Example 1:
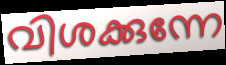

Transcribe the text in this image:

വിശക്കുന്നേ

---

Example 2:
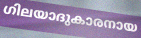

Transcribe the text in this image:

ഗിലയാദുകാരനായ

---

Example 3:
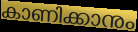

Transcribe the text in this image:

കാണിക്കാനും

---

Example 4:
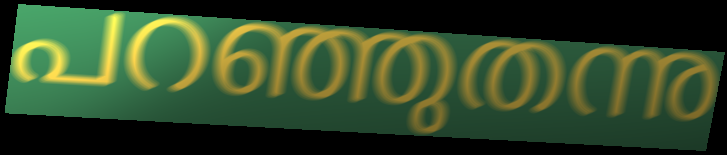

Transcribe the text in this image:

പറഞ്ഞുതന്നു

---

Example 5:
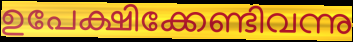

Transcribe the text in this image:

ഉപേക്ഷിക്കേണ്ടിവന്നു